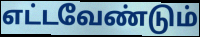
எட்டவேண்டும்